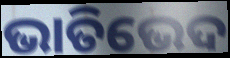
ଭାତିଭେଦ